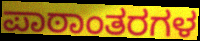
ಪಾಠಾಂತರಗಳ